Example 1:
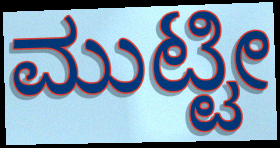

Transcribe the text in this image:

ಮುಟ್ಟೀ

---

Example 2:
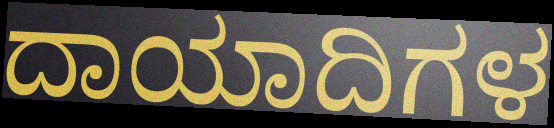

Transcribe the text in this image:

ದಾಯಾದಿಗಳ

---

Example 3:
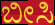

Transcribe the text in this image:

ಬೀಸಿ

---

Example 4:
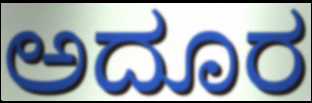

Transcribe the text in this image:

ಅದೂರ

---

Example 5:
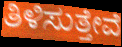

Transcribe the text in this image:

ತಿಳಿಸುತ್ತೇವೆ